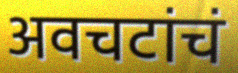
अवचटांचं